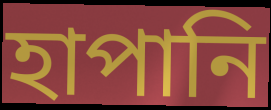
হাপানি